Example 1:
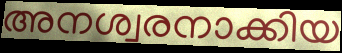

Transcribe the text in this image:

അനശ്വരനാക്കിയ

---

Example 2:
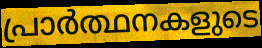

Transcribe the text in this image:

പ്രാർത്ഥനകളുടെ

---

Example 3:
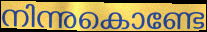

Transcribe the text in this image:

നിന്നുകൊണ്ടേ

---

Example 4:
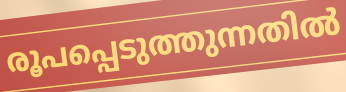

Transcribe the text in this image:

രൂപപ്പെടുത്തുന്നതിൽ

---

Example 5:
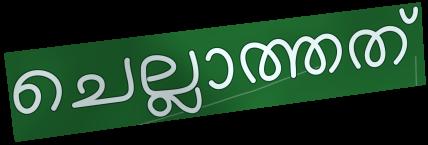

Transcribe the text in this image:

ചെല്ലാത്തത്